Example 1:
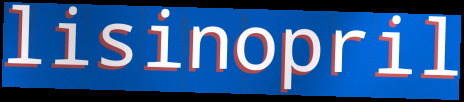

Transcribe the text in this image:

lisinopril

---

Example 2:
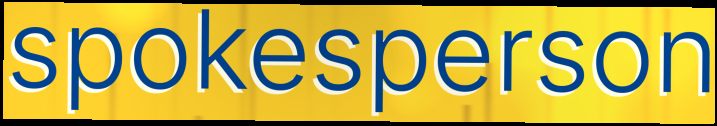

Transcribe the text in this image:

spokesperson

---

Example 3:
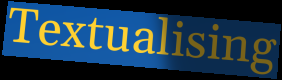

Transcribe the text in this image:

Textualising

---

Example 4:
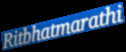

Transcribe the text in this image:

Ritbhatmarathi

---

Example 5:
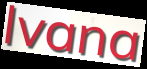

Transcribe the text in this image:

Ivana